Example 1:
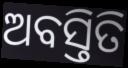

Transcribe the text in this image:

ଅବସ୍ତିତି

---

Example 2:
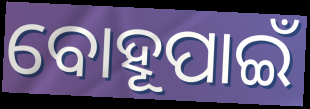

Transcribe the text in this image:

ବୋହୂପାଇଁ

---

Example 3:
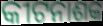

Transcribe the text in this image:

କୀଟନାଶକ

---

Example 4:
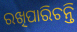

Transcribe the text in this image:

ରଖିପାରିଚନ୍ତି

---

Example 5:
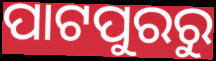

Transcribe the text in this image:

ପାଟପୁରରୁ